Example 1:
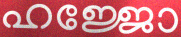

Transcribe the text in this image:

ഹജ്ജോ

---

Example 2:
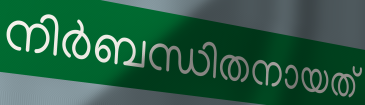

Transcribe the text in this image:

നിർബന്ധിതനായത്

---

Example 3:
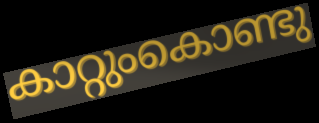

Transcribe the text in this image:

കാറ്റുംകൊണ്ടു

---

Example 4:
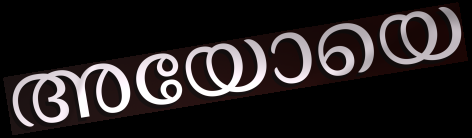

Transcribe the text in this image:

അയോയെ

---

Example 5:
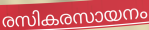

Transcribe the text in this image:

രസികരസായനം